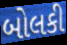
બોલકી